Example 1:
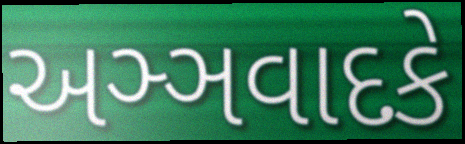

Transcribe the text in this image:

અઞ્ઞવાદકે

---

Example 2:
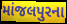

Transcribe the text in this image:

માંજલપુરના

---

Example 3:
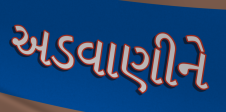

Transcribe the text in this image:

અડવાણીને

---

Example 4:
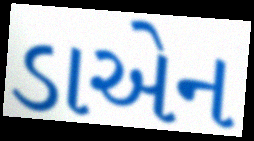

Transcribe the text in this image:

ડાએન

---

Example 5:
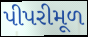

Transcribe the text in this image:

પીપરીમૂળ